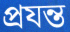
প্রযন্ত